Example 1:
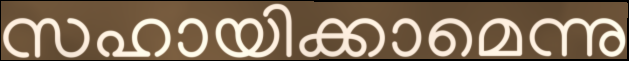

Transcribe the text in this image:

സഹായിക്കാമെന്നു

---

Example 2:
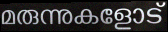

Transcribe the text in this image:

മരുന്നുകളോട്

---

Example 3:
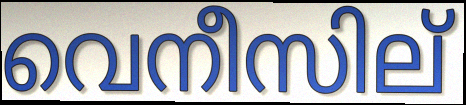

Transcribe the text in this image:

വെനീസില്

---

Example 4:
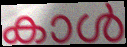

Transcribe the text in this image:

കാൾ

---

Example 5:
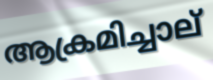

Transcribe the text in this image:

ആക്രമിച്ചാല്